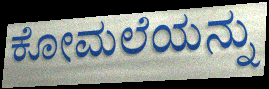
ಕೋಮಲೆಯನ್ನು